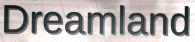
Dreamland